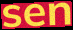
sen